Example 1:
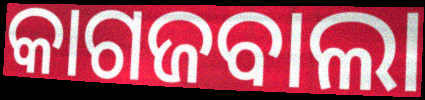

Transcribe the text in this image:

କାଗଜବାଲା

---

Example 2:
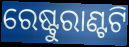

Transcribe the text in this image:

ରେଷ୍ଟୁରାଣ୍ଟଟି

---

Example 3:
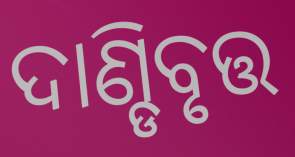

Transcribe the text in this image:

ଦାଣ୍ଡିବୃତ୍ତ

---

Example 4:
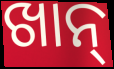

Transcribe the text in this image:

ଖାନ୍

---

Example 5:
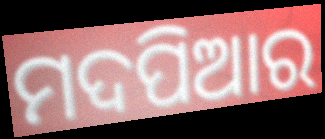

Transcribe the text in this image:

ମଦପିଆର